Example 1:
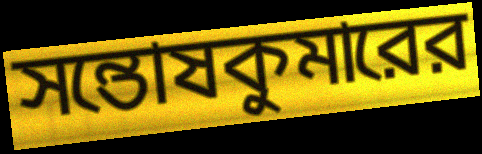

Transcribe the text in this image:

সন্তোষকুমারের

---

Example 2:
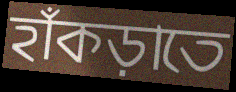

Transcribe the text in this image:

হাঁকড়াতে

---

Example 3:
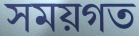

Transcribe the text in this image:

সময়গত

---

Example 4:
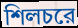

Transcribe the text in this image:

শিলচরে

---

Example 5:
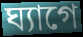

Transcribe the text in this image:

ঘ্যাগে